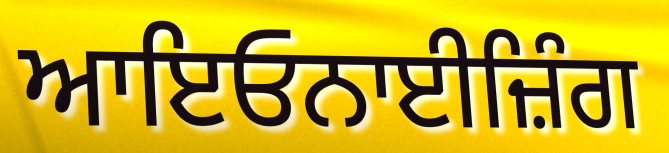
ਆਇਓਨਾਈਜ਼ਿੰਗ